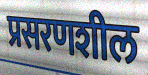
प्रसरणशील